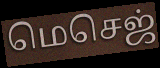
மெசெஜ்